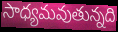
సాధ్యమవుతున్నది